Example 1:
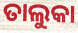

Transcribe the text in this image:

ତାଲୁକା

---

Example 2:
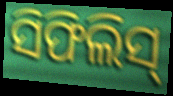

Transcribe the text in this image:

ସିଫିଲିସ୍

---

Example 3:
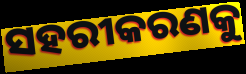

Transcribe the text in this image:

ସହରୀକରଣକୁ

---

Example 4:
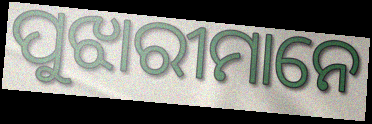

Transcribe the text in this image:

ପୁଝାରୀମାନେ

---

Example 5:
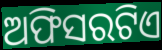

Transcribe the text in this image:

ଅଫିସରଟିଏ